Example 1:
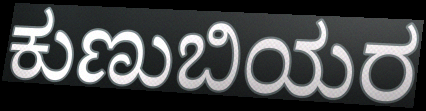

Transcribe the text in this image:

ಕುಣುಬಿಯರ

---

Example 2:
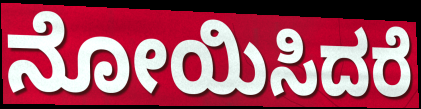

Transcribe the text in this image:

ನೋಯಿಸಿದರೆ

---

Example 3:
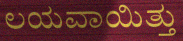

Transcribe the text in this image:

ಲಯವಾಯಿತ್ತು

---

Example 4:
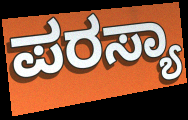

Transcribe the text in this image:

ಪರಸ್ಯಾ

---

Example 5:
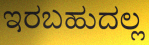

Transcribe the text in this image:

ಇರಬಹುದಲ್ಲ